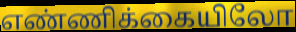
எண்ணிக்கையிலோ